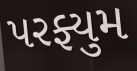
પરફ્યુમ